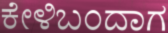
ಕೇಳಿಬಂದಾಗ